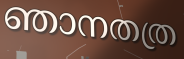
ഞാനതത്ര